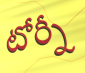
టోర్నీ